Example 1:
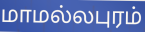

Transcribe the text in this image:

மாமல்லபுரம்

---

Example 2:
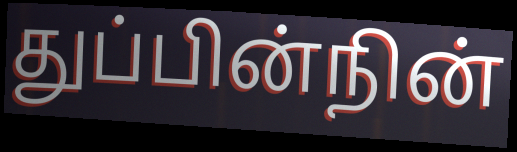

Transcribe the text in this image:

துப்பின்நின்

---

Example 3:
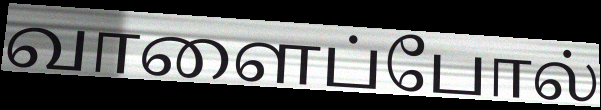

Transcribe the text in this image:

வாளைப்போல்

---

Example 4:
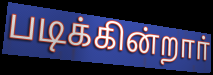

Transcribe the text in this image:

படிக்கின்றார்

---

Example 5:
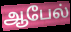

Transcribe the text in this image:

ஆபேல்